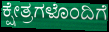
ಕ್ಷೇತ್ರಗಳೊಂದಿಗೆ